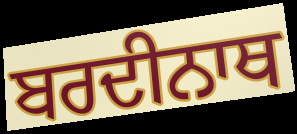
ਬਰਦੀਨਾਥ